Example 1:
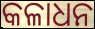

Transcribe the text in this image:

କଳାଧନ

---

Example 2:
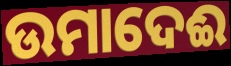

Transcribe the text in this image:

ଉମାଦେଈ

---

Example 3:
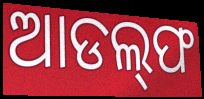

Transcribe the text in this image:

ଆଡଲ୍‌ଫ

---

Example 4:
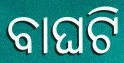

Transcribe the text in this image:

ବାଘଟି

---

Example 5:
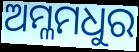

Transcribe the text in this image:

ଅମ୍ଳମଧୁର